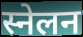
स्नेलन